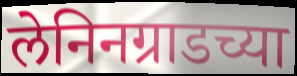
लेनिनग्राडच्या